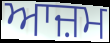
ਆਜ਼ਮ